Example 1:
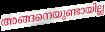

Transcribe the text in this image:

അങ്ങനെയുണ്ടായില്ല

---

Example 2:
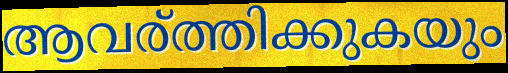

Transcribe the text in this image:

ആവര്ത്തിക്കുകയും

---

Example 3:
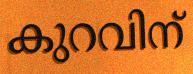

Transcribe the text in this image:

കുറവിന്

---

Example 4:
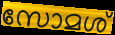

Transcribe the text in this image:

സോമശ്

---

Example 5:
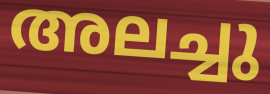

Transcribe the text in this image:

അലച്ചു